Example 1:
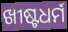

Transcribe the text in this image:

ଖୀଷ୍ଟଧର୍ମ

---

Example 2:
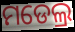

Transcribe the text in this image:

ମଡେଲ୍ର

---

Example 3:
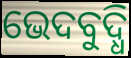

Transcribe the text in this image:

ଭେଦବୁଦ୍ଧି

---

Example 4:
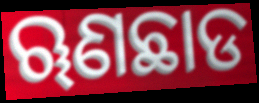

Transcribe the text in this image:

ୠଣଛାଡ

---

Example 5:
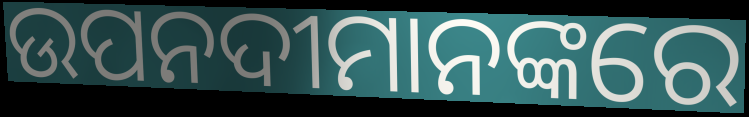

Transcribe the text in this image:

ଉପନଦୀମାନଙ୍କରେ